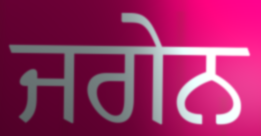
ਜਗੇਨ